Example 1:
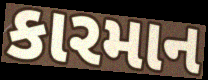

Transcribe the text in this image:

કારમાન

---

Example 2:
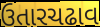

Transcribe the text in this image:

ઉતારચઢાવ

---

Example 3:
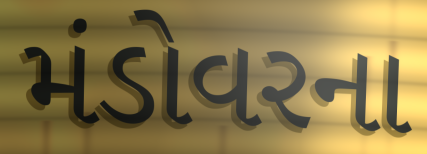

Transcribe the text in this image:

મંડોવરના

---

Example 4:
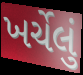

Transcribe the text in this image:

ખર્ચેલું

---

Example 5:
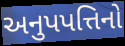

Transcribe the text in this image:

અનુપપત્તિનો